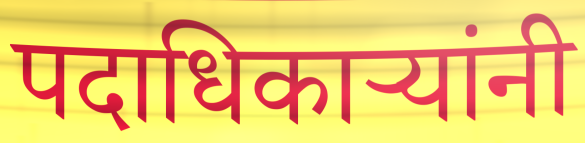
पदाधिकार्‍यांनी